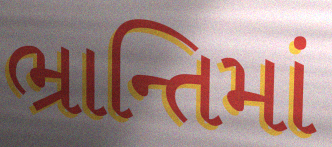
ભ્રાન્તિમાં